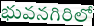
భువనగిరిలో